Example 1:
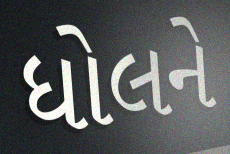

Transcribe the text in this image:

ધોલને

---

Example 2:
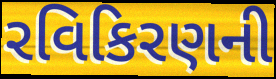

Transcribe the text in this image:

રવિકિરણની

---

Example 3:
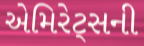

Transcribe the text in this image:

એમિરેટ્સની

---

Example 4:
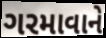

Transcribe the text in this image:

ગરમાવાને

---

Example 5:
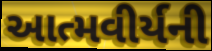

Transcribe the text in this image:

આત્મવીર્યની